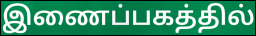
இணைப்பகத்தில்